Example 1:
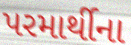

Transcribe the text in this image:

પરમાર્થીના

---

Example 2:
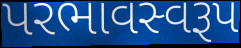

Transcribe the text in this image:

પરભાવસ્વરૂપ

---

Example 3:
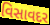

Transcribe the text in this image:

વિસાવદર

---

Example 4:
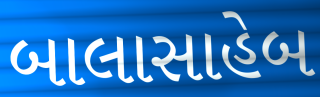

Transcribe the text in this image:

બાલાસાહેબ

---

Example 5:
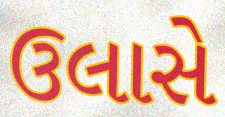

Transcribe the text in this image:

ઉલાસે